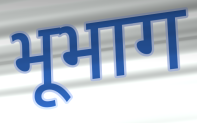
भूभाग